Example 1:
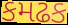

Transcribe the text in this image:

કમઢક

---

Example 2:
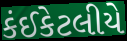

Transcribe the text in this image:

કંઈકેટલીયે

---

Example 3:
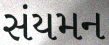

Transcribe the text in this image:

સંયમન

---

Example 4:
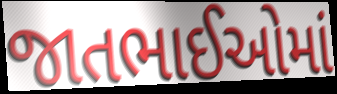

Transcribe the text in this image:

જાતભાઈઓમાં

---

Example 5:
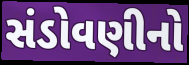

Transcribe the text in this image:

સંડોવણીનો